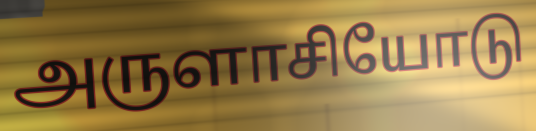
அருளாசியோடு